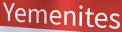
Yemenites